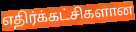
எதிர்க்கட்சிகளான